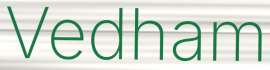
Vedham